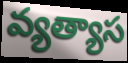
వ్యత్యాస